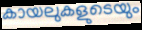
കായലുകളുടെയും